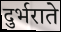
दुर्भराते